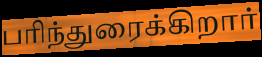
பரிந்துரைக்கிறார்